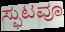
ಸ್ಫುಟವೂ